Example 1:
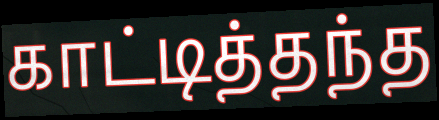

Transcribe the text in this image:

காட்டித்தந்த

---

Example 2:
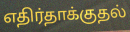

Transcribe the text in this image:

எதிர்தாக்குதல்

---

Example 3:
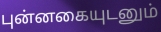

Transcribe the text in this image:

புன்னகையுடனும்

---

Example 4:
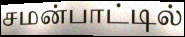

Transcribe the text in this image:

சமன்பாட்டில்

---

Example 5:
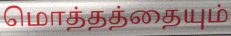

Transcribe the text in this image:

மொத்தத்தையும்